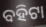
ବହିଟା